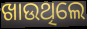
ଖାଉଥିଲେ